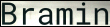
Bramin